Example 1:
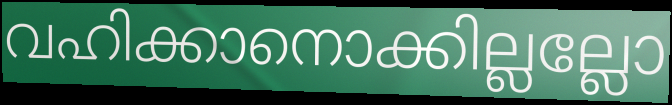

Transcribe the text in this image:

വഹിക്കാനൊക്കില്ലല്ലോ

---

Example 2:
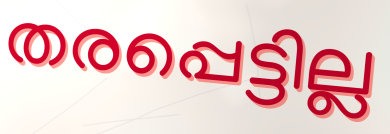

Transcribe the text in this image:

തരപ്പെട്ടില്ല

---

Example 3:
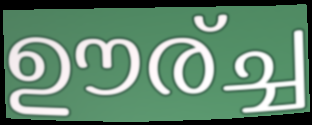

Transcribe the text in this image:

ഊര്ച്ച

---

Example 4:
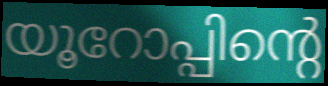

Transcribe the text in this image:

യൂറോപ്പിന്റെ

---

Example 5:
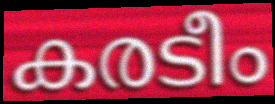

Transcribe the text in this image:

കരടീം